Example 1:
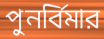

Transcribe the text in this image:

পুনর্বিমার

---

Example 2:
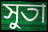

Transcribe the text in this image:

সুতা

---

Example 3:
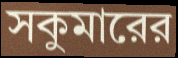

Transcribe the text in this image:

সকুমারের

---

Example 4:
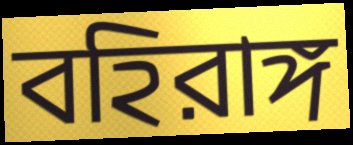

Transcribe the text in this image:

বহিরাঙ্গ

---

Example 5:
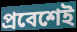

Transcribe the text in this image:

প্রবেশেই